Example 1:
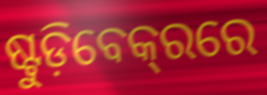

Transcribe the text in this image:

ଷ୍ଟୁଡ଼ିବେକ୍‌ରରେ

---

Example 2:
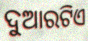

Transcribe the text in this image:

ଦୁଆରଟିଏ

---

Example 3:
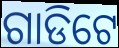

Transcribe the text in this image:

ଗାଡିଟେ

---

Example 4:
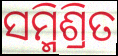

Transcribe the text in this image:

ସମ୍ମିଶ୍ରିତ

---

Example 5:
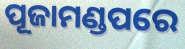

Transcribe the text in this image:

ପୂଜାମଣ୍ଡପରେ